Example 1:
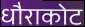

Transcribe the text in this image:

धौराकोट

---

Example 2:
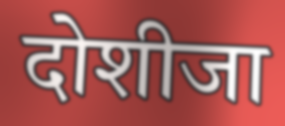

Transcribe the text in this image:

दोशीजा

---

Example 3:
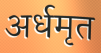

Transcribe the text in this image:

अर्धमृत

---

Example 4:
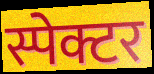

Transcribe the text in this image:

स्पेक्टर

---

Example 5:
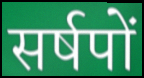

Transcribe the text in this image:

सर्षपों